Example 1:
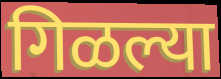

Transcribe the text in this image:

गिळल्या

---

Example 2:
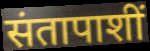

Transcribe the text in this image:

संतापाशीं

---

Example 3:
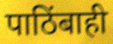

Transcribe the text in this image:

पाठिंबाही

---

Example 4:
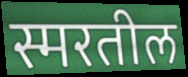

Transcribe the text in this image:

स्मरतील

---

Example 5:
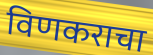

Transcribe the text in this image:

विणकराचा